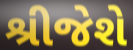
શ્રીજેશે